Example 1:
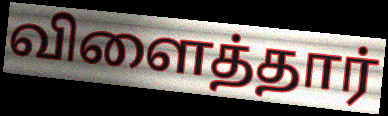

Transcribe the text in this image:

விளைத்தார்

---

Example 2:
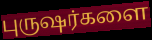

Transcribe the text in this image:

புருஷர்களை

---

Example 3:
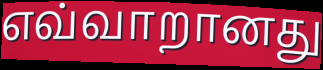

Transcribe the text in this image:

எவ்வாறானது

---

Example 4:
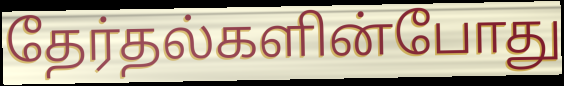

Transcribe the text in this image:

தேர்தல்களின்போது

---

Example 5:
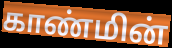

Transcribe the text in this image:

காண்மின்